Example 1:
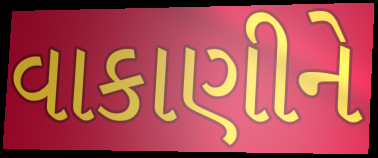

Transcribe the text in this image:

વાકાણીને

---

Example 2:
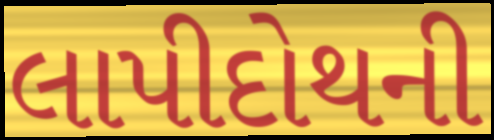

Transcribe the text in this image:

લાપીદોથની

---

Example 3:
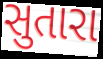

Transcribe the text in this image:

સુતારા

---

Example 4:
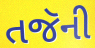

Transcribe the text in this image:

તજૅની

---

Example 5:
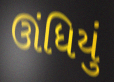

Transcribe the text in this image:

ઊંધિયું